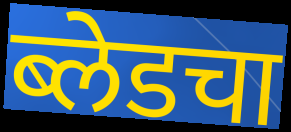
ब्लेडचा